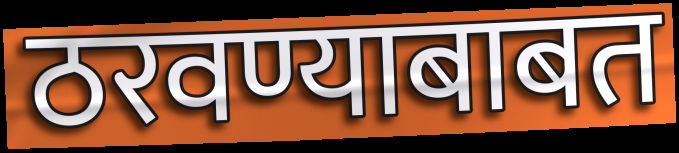
ठरवण्याबाबत